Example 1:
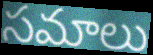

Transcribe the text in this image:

సమాలు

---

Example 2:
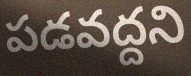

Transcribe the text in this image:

పడవద్దని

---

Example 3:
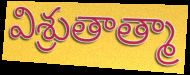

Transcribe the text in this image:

విశ్రుతాత్మా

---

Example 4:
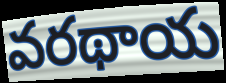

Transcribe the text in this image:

వరథాయ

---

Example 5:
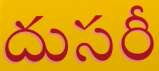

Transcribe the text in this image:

దుసరీ